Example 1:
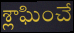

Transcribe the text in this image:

శ్లాఘించే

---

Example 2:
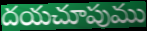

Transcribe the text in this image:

దయచూపుము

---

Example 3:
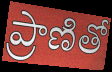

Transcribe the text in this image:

ప్రాణితో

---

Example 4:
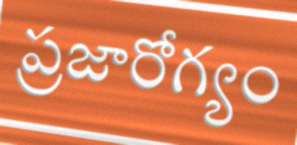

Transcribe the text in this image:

ప్రజారోగ్యం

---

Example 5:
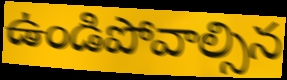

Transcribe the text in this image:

ఉండిపోవాల్సిన